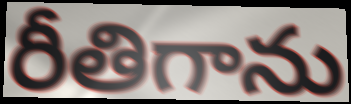
రీతిగాను